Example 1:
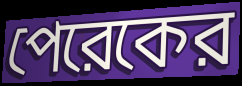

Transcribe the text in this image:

পেরেকের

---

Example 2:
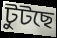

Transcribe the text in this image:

টুটছে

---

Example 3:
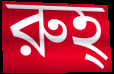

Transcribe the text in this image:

রুহ্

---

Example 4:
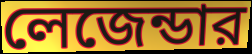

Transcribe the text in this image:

লেজেন্ডার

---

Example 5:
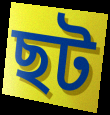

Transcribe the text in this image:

ছট